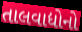
તાલવાદ્યોનો